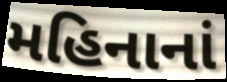
મહિનાનાં